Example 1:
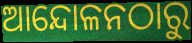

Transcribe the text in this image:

ଆନ୍ଦୋଳନଠାରୁ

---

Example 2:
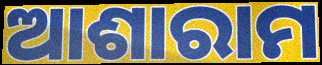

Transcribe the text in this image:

ଆଶାରାମ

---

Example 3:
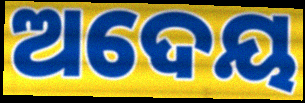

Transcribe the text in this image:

ଅଦେୟ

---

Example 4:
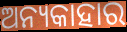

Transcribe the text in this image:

ଅନ୍ୟକାହାର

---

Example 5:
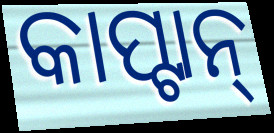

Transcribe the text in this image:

କାପ୍ଟାନ୍